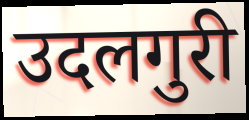
उदलगुरी